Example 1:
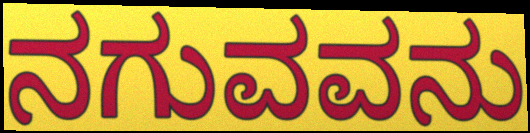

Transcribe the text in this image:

ನಗುವವನು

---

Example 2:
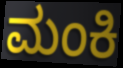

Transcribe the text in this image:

ಮಂಕಿ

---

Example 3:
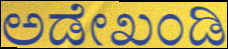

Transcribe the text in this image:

ಅಡೇಖಂಡಿ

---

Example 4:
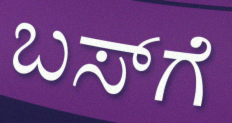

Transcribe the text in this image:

ಬಸ್‍ಗೆ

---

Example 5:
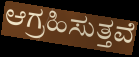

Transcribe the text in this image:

ಆಗ್ರಹಿಸುತ್ತವೆ